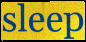
sleep